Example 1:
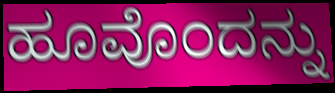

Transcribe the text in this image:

ಹೂವೊಂದನ್ನು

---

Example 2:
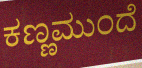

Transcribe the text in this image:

ಕಣ್ಣಮುಂದೆ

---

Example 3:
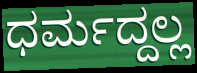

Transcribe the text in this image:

ಧರ್ಮದ್ದಲ್ಲ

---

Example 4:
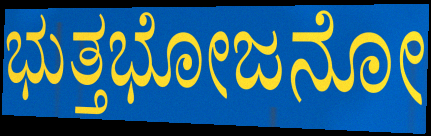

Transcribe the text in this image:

ಭುತ್ತಭೋಜನೋ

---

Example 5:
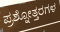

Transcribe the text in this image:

ಪ್ರಶ್ನೋತ್ತರಗಳ